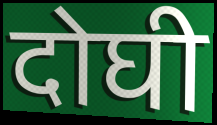
दोघी